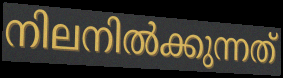
നിലനിൽക്കുന്നത്